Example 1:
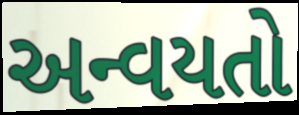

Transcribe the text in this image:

અન્વયતો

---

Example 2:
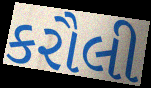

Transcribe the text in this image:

કરૌલી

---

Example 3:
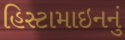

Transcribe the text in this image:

હિસ્ટામાઇનનું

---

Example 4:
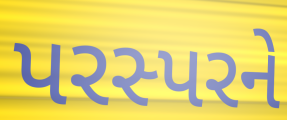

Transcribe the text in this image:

પરસ્પરને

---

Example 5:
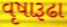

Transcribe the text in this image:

વૃષારૂઢા